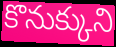
కొనుక్కుని